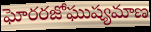
ఘోరరజోఘుష్యమాణ